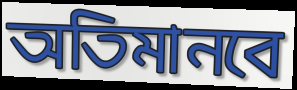
অতিমানবে